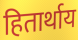
हितार्थाय